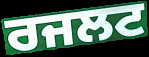
ਰਜਲਟ